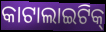
କାଟାଲାଇଟିକ୍